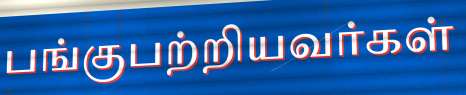
பங்குபற்றியவர்கள்